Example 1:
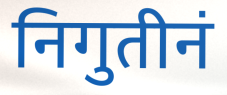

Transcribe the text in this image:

निगुतीनं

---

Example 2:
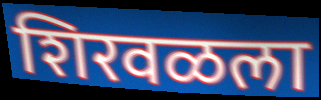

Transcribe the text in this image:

शिरवळला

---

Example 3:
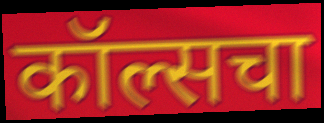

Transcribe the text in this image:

कॉल्सचा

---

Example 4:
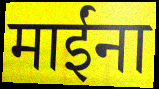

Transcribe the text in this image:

माईंना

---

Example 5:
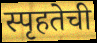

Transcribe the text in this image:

स्पृहतेची